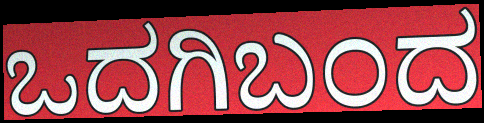
ಒದಗಿಬಂದ